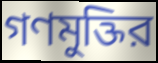
গণমুক্তির